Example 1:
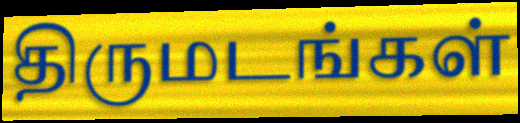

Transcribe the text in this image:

திருமடங்கள்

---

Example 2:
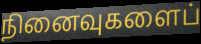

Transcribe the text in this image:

நினைவுகளைப்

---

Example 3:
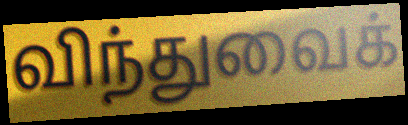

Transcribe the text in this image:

விந்துவைக்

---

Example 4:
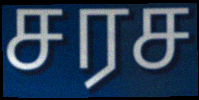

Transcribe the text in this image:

சரச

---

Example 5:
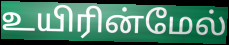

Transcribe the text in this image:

உயிரின்மேல்